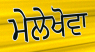
ਮੇਲੇਖੋਵਾ